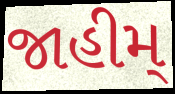
જાહીમ્